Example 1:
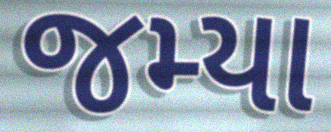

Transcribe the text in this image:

જમ્યા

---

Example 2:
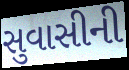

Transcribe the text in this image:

સુવાસીની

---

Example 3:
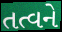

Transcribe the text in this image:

તત્વને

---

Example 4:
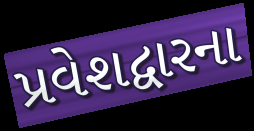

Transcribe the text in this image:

પ્રવેશદ્વારના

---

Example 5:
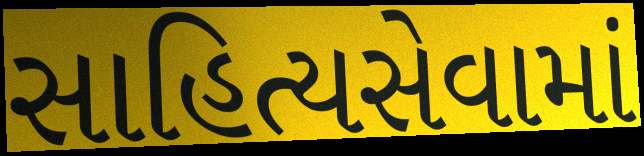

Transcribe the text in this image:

સાહિત્યસેવામાં